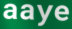
aaye